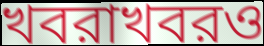
খবরাখবরও